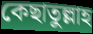
কেছাতুল্লাহ